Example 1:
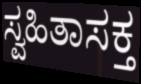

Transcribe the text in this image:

ಸ್ವಹಿತಾಸಕ್ತ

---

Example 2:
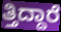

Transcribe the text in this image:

ತ್ತಿದ್ದಾರೆ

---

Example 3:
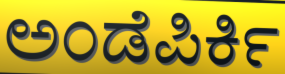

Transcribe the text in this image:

ಅಂಡೆಪಿರ್ಕಿ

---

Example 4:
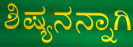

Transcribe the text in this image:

ಶಿಷ್ಯನನ್ನಾಗಿ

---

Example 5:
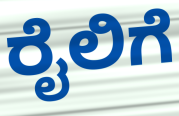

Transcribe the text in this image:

ರೈಲಿಗೆ